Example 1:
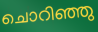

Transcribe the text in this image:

ചൊറിഞ്ഞു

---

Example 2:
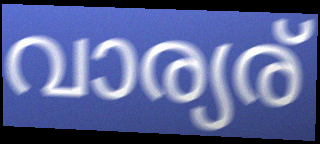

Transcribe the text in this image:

വാര്യര്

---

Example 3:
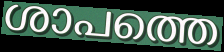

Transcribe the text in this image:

ശാപത്തെ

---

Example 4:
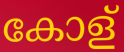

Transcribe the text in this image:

കോള്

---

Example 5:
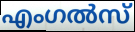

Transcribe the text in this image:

എംഗൽസ്